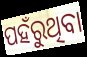
ପହଁରୁଥିବା